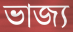
ভাজ্য